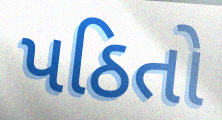
પઠિતો